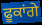
ਫੂਕਾਂਗੇ